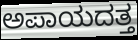
ಅಪಾಯದತ್ತ